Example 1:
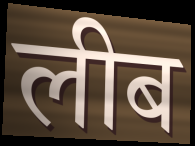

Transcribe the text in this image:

लीब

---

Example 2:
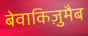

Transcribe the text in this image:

बेवाकिज़ुमैब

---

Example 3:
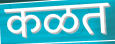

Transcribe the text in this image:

कळत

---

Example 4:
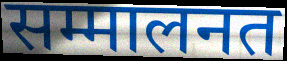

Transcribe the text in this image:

सम्मालनत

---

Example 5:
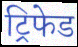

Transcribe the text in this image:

ट्रिफेड